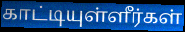
காட்டியுள்ளீர்கள்